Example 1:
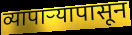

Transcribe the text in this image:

व्यापाऱ्यापासून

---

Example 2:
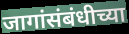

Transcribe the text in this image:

जागांसंबंधीच्या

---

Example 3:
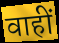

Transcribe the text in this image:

वाहीं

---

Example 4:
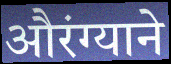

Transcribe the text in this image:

औरंग्याने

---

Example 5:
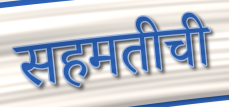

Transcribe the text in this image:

सहमतीची